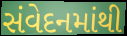
સંવેદનમાંથી